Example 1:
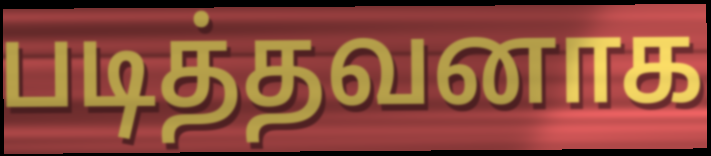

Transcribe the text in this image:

படித்தவனாக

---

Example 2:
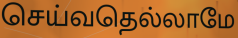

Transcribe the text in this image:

செய்வதெல்லாமே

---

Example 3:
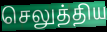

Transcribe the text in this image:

செலுத்திய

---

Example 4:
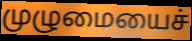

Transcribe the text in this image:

முழுமையைச்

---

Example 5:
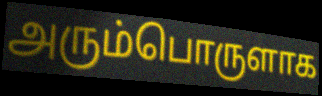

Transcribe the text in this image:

அரும்பொருளாக